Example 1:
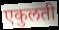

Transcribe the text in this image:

एकुलती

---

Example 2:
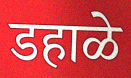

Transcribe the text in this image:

डहाळे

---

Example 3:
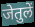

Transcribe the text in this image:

जेतुलें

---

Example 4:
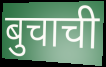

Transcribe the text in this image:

बुचाची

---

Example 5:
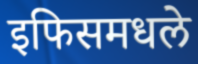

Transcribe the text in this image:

इफिसमधले